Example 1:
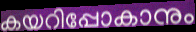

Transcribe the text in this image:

കയറിപ്പോകാനും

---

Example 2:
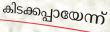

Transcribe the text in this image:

കിടക്കപ്പായേന്ന്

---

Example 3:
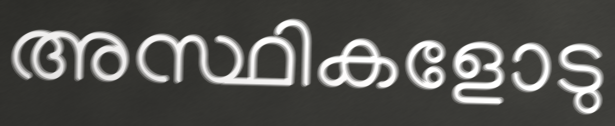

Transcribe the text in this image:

അസ്ഥികളോടു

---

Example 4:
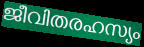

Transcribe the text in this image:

ജീവിതരഹസ്യം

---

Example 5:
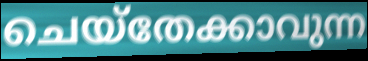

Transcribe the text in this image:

ചെയ്തേക്കാവുന്ന